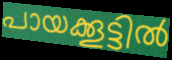
പായക്കൂട്ടിൽ